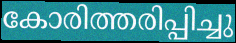
കോരിത്തരിപ്പിച്ചു